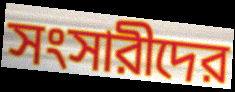
সংসারীদের